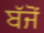
ਬੱਜੋਂ